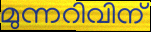
മുന്നറിവിന്